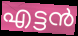
എട്ടൻ